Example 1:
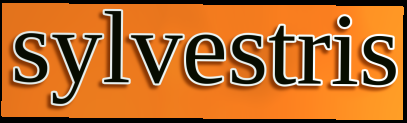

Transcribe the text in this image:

sylvestris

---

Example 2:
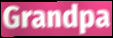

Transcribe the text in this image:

Grandpa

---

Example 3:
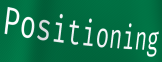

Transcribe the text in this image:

Positioning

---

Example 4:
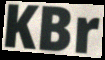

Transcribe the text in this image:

KBr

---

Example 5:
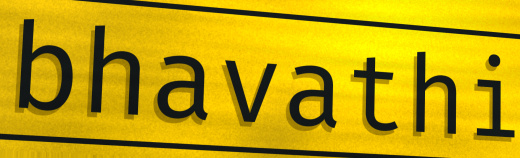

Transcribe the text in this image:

bhavathi